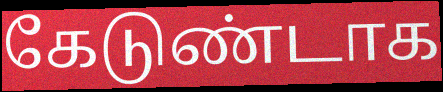
கேடுண்டாக